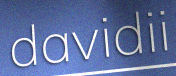
davidii